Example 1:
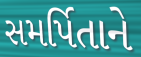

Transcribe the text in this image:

સમર્પિતાને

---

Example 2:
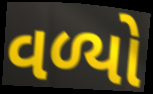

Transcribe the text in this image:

વળ્યો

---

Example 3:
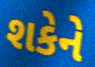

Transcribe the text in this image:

શકેને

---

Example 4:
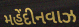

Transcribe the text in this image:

મહેંદીનવાઝ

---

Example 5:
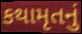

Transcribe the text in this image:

કથામૃતનું